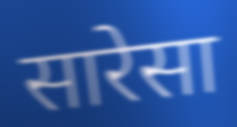
सारेसा